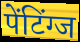
पेंटिंग्ज